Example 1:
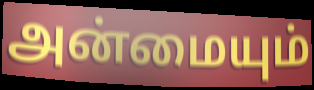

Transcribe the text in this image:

அன்மையும்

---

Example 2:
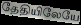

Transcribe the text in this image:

தேதியிலேயே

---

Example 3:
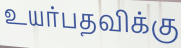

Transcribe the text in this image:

உயர்பதவிக்கு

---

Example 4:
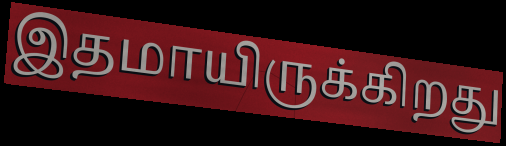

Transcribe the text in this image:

இதமாயிருக்கிறது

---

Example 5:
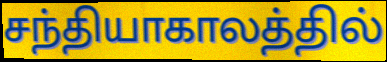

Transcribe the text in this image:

சந்தியாகாலத்தில்